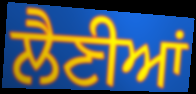
ਲੈਣੀਆਂ